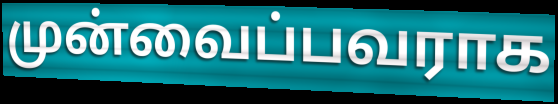
முன்வைப்பவராக